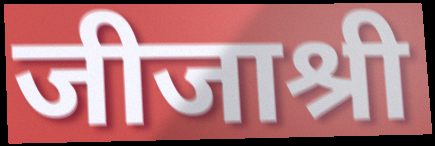
जीजाश्री